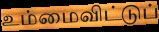
உம்மைவிட்டுப்